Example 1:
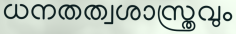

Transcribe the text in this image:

ധനതത്വശാസ്ത്രവും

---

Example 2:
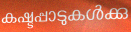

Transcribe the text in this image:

കഷ്ടപ്പാടുകൾക്കു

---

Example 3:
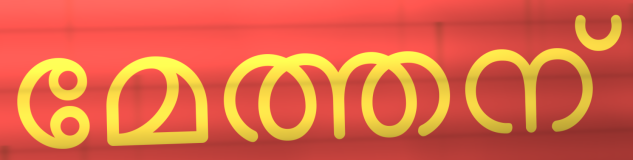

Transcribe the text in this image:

മേത്തന്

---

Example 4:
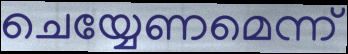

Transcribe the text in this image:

ചെയ്യേണമെന്ന്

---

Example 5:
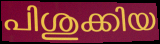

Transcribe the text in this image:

പിശുക്കിയ